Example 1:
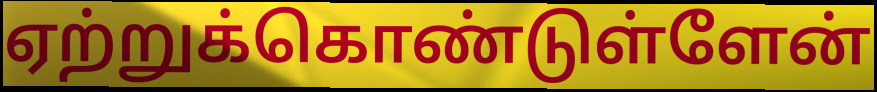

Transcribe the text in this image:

ஏற்றுக்கொண்டுள்ளேன்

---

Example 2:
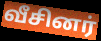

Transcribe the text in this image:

வீசினர்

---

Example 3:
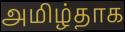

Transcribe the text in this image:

அமிழ்தாக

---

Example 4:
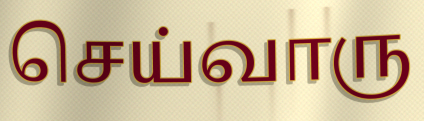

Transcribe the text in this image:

செய்வாரு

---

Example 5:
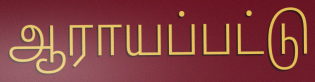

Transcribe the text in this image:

ஆராயப்பட்டு